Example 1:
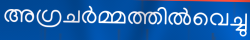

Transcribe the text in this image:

അഗ്രചർമ്മത്തിൽവെച്ചു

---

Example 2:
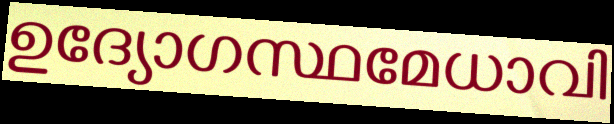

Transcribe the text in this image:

ഉദ്യോഗസ്ഥമേധാവി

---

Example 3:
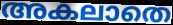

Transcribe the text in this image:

അകലാതെ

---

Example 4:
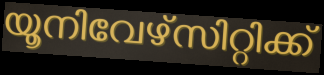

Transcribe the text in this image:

യൂനിവേഴ്സിറ്റിക്ക്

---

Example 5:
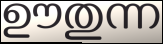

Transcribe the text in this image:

ഊതുന്ന